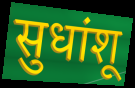
सुधांशू